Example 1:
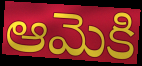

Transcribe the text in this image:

ఆమెకి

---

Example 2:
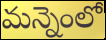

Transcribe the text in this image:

మన్నెంలో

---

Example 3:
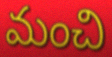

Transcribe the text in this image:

మంచి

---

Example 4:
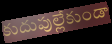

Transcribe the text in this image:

కుదుపుల్లేకుండా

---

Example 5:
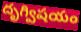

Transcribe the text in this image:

దృగ్విషయం